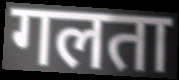
गलता